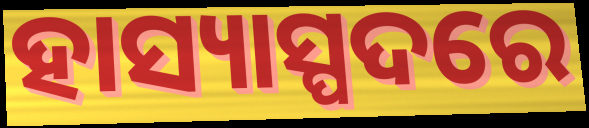
ହାସ୍ୟାସ୍ପଦରେ